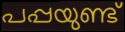
പപ്പയുണ്ട്